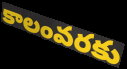
కాలంవరకు